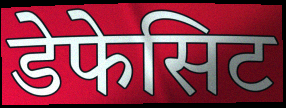
डेफेसिट